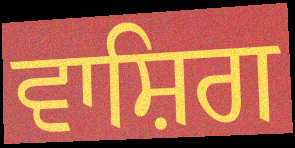
ਵਾਸ਼ਿਗ